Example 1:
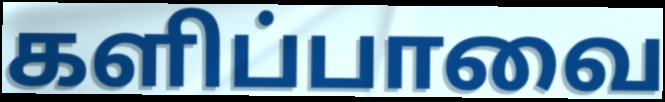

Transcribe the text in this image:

களிப்பாவை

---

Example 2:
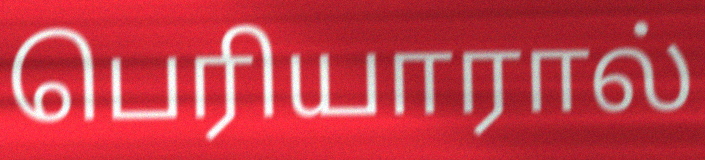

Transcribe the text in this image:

பெரியாரால்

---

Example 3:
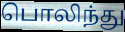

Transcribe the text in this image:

பொலிந்து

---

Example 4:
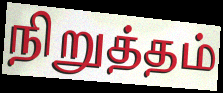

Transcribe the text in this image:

நிறுத்தம்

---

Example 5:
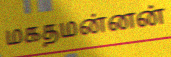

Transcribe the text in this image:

மகதமன்னன்